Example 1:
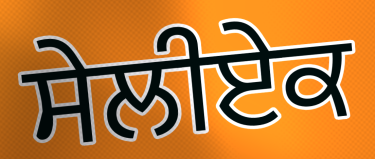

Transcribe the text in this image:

ਸੇਲੀਏਕ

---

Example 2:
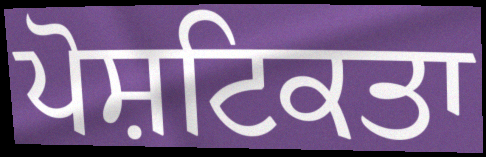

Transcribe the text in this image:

ਪੋਸ਼ਟਿਕਤਾ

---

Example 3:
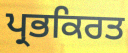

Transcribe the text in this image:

ਪ੍ਰਭਕਿਰਤ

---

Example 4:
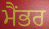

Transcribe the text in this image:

ਮੈਂਭਰ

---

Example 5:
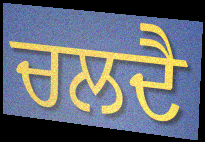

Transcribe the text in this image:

ਚਲਦੈ